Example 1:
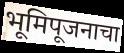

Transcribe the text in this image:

भूमिपूजनाचा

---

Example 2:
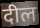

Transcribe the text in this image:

दील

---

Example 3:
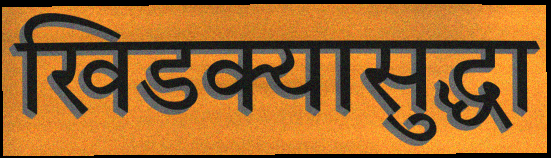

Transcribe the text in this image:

खिडक्यासुद्धा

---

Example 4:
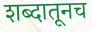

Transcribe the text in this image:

शब्दातूनच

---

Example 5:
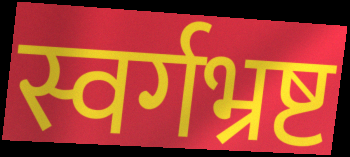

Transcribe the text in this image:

स्वर्गभ्रष्ट